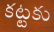
కట్టకు